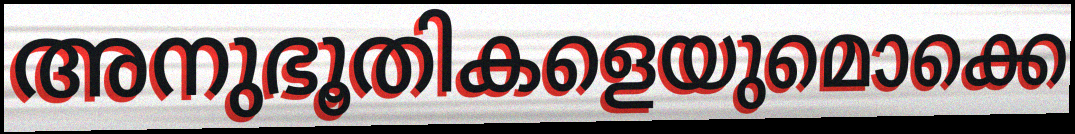
അനുഭൂതികളെയുമൊക്കെ